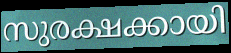
സുരക്ഷക്കായി